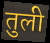
तुली